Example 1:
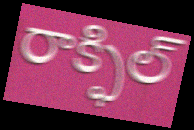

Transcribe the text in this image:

రాక్ఫిల్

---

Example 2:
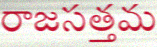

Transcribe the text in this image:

రాజసత్తమ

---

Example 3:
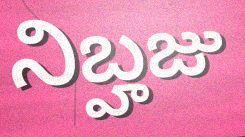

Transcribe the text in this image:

నిబ్హజు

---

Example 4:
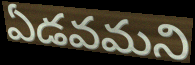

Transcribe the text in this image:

ఏడవమని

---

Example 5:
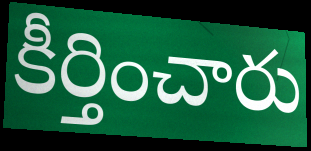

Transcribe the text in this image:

కీర్తించారు